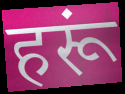
हरूं